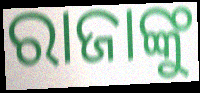
ରାଜାଙ୍କୁ